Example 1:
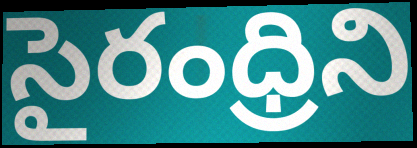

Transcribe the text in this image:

సైరంధ్రిని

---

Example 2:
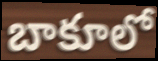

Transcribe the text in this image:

బాకూలో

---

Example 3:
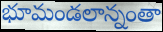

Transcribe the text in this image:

భూమండలాన్నంతా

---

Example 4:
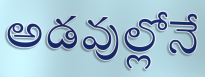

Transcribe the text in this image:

అడవుల్లోనే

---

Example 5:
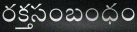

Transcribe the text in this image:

రక్తసంబంధం